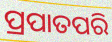
ପ୍ରପାତପରି